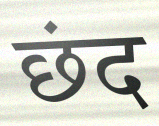
छंद